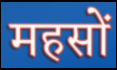
महसों